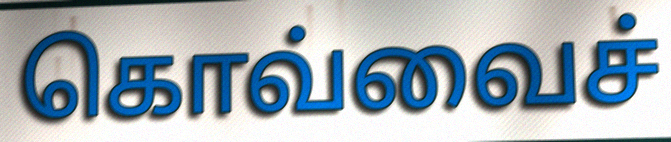
கொவ்வைச்